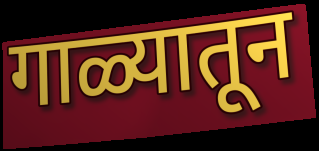
गाळ्यातून